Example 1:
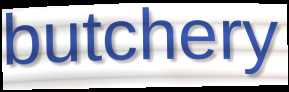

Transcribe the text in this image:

butchery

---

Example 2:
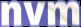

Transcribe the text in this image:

nvm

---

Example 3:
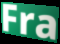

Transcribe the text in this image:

Fra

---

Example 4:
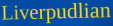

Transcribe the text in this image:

Liverpudlian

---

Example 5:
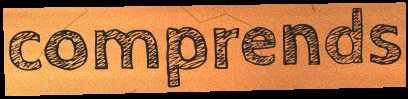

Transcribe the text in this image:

comprends